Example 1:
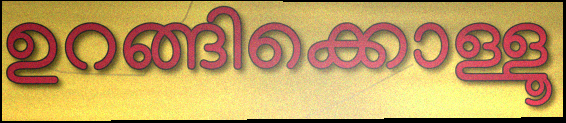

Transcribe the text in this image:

ഉറങ്ങിക്കൊള്ളൂ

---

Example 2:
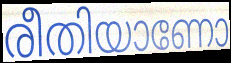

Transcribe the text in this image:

രീതിയാണോ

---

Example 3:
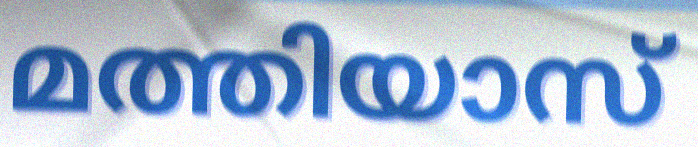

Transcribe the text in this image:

മത്തിയാസ്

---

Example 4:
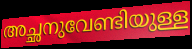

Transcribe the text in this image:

അച്ഛനുവേണ്ടിയുള്ള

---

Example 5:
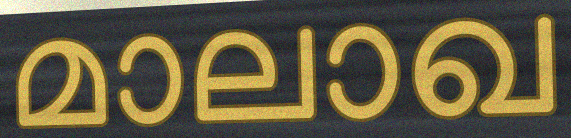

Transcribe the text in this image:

മാലാഖ